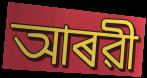
আৰৱী